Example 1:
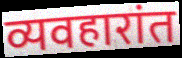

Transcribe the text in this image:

व्यवहारांत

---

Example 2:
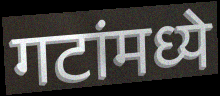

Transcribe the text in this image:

गटांमध्ये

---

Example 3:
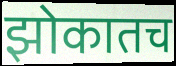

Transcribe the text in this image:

झोकातच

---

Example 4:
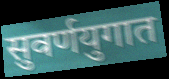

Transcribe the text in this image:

सुवर्णयुगात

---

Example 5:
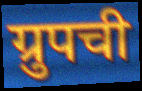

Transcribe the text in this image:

ग्रुपची